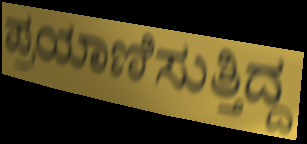
ಪ್ರಯಾಣಿಸುತ್ತಿದ್ದ